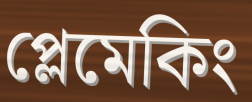
প্লেমেকিং